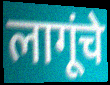
लागूंचे